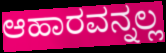
ಆಹಾರವನ್ನಲ್ಲ